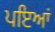
ਪਇਆਂ